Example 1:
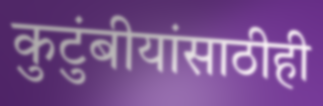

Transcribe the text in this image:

कुटुंबीयांसाठीही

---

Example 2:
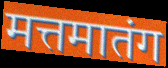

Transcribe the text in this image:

मत्तमातंग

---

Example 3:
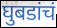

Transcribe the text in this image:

घुबडांचं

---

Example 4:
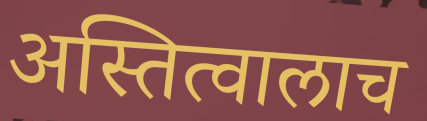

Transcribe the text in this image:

अस्तित्वालाच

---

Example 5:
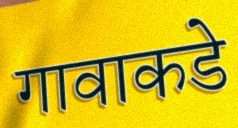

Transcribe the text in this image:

गावाकडे